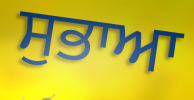
ਸੁਭਾਆ